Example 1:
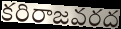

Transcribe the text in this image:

కరిరాజవరద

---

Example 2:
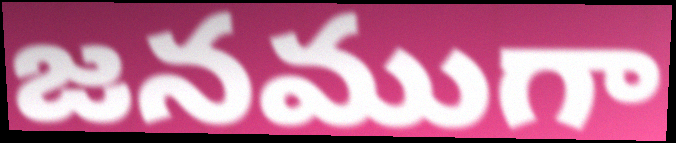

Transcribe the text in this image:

జనముగా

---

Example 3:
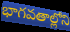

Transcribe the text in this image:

భాగవతాల్లోని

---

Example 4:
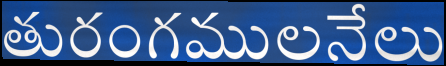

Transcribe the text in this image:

తురంగములనేలు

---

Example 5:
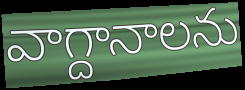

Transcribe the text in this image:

వాగ్దానాలను